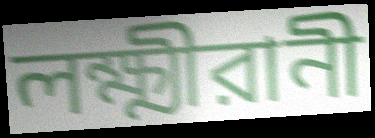
লক্ষ্মীরানী